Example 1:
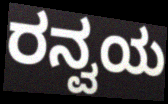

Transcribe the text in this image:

ರನ್ವಯ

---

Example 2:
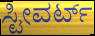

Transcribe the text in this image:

ಸ್ಟೀವರ್ಟ್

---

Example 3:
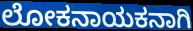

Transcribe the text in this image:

ಲೋಕನಾಯಕನಾಗಿ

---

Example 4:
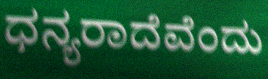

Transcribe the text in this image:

ಧನ್ಯರಾದೆವೆಂದು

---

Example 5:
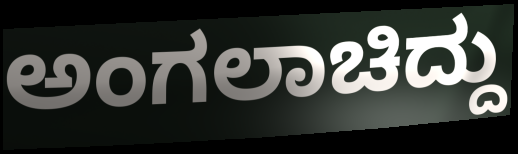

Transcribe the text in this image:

ಅಂಗಲಾಚಿದ್ದು